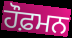
ਹੌਫ਼ਮਨ